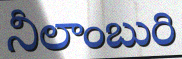
నీలాంబురి